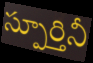
స్పూర్తినీ